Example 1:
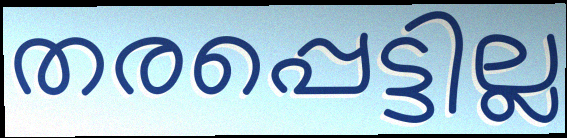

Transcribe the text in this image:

തരപ്പെട്ടില്ല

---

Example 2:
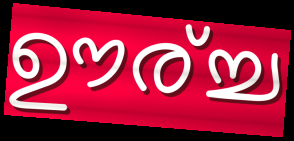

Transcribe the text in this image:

ഊര്ച്ച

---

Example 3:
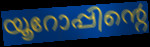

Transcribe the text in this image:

യൂറോപ്പിന്റെ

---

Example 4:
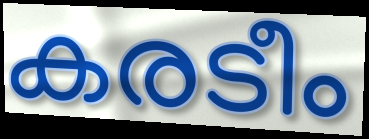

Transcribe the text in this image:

കരടീം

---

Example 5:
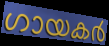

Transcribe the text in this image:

ഗായകർ